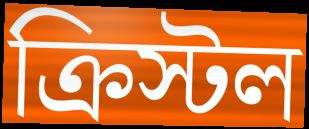
ক্রিস্টল